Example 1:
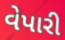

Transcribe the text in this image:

વેપારી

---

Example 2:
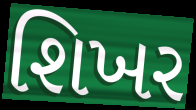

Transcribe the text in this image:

શિખર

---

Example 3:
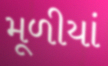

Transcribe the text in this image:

મૂળીયાં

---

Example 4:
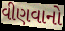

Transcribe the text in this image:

વીણવાનો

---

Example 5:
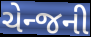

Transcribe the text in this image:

ચેન્જની